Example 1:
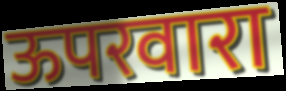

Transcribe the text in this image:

ऊपरवारा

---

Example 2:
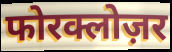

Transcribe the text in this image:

फोरक्लोज़र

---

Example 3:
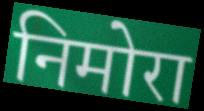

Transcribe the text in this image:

निमोरा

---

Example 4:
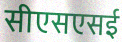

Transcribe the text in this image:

सीएसएसई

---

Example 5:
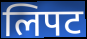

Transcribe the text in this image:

लिपट